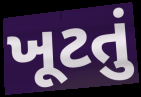
ખૂટતું